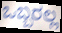
ಒಬ್ಬರಲ್ಲ